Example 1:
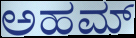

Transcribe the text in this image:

ಅಹಮ್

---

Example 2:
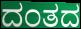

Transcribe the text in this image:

ದಂತದ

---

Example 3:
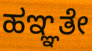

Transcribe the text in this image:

ಹಞ್ಞತೇ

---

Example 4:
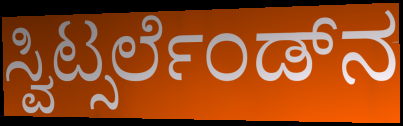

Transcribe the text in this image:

ಸ್ವಿಟ್ಸರ್ಲೆಂಡ್‌ನ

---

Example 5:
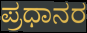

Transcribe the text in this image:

ಪ್ರಧಾನರ